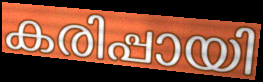
കരിപ്പായി